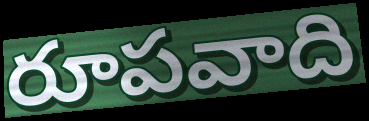
రూపవాది